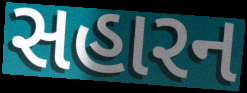
સહારન